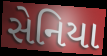
સેનિયા